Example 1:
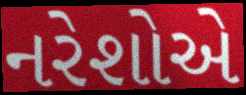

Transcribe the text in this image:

નરેશોએ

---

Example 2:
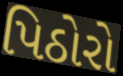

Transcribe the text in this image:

પિઠોરો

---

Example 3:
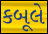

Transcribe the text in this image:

કબૂલે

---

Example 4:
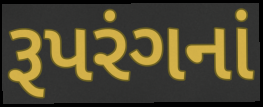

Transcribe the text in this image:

રૂપરંગનાં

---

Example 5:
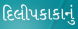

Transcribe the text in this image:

દિલીપકાકાનું